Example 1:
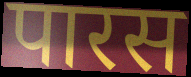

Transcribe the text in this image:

पारस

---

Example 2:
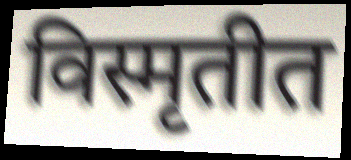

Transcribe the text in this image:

विस्मृतीत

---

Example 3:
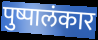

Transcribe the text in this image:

पुष्पालंकार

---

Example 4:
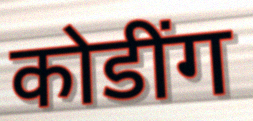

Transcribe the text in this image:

कोडींग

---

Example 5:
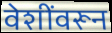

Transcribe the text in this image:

वेशींवरून